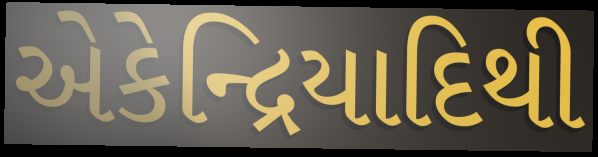
એકેન્દ્રિયાદિથી